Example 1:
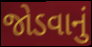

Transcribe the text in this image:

જોડવાનું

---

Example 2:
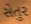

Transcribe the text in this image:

સેતુર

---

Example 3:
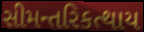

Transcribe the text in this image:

સીમન્તરિકત્થાય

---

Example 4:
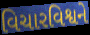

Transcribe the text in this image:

વિચારવિશ્વને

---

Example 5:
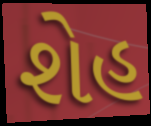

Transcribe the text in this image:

શેહ